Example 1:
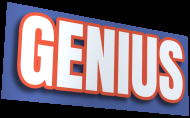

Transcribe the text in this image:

GENIUS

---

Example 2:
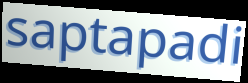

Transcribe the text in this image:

saptapadi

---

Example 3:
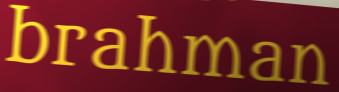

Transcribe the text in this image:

brahman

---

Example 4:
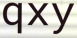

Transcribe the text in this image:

qxy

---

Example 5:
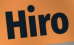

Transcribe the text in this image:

Hiro